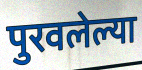
पुरवलेल्या